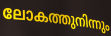
ലോകത്തുനിന്നും